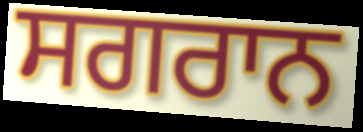
ਸਗਰਾਨ